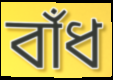
বাঁধ